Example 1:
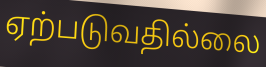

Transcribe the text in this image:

ஏற்படுவதில்லை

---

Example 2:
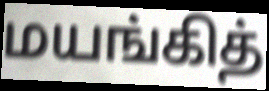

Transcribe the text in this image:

மயங்கித்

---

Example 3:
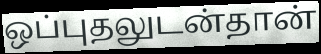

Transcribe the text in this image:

ஒப்புதலுடன்தான்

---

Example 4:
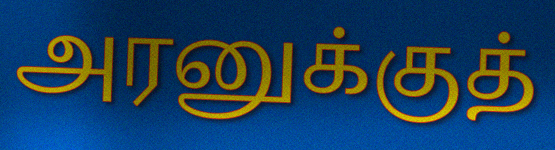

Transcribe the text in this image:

அரனுக்குத்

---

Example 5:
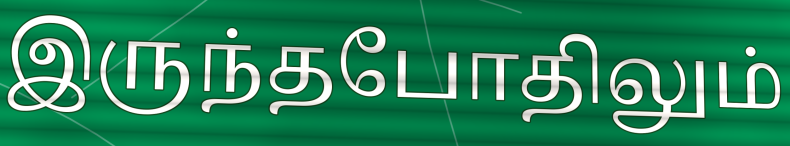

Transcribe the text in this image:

இருந்தபோதிலும்